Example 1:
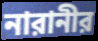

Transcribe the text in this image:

নারানীর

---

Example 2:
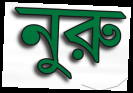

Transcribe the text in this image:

নুরু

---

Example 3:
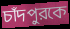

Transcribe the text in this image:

চাঁদপুরকে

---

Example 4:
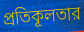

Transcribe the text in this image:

প্রতিকূলতার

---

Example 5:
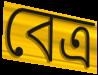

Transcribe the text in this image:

বেত্র